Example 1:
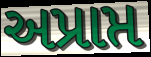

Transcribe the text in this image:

અપ્રાપ્ત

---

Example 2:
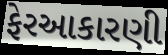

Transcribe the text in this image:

ફેરઆકારણી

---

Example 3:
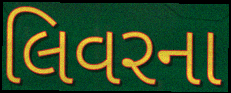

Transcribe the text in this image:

લિવરના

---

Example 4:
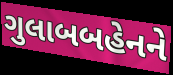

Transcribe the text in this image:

ગુલાબબહેનને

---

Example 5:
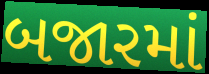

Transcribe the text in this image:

બજારમાં